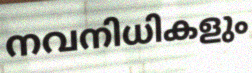
നവനിധികളും